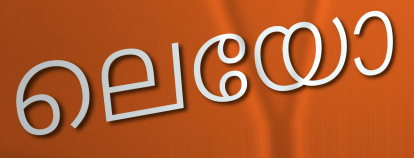
ലെയോ